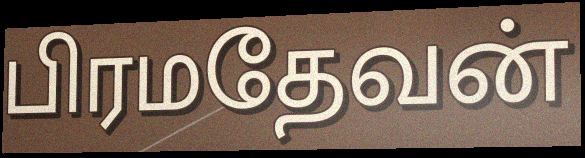
பிரமதேவன்